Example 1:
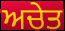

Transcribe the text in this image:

ਅਚੇਤ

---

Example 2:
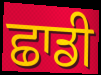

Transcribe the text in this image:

ਛਾਡੀ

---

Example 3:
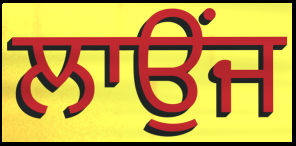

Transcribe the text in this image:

ਲਾਉਂਜ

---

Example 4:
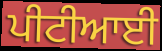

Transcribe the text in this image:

ਪੀਟੀਆਈ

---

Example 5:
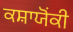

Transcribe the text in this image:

ਕਸ਼ਾਯੋਂਕੀ